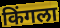
किंगला